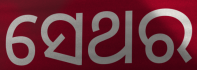
ସେଥର